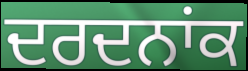
ਦਰਦਨਾਂਕ